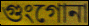
গুংগোনা